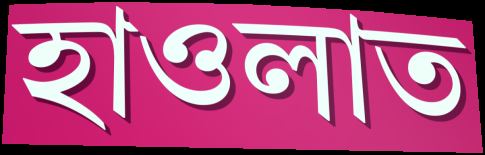
হাওলাত